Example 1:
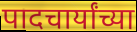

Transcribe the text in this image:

पादचार्यांच्या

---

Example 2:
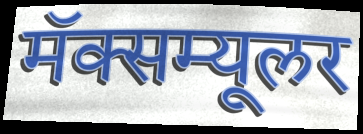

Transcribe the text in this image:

मॅक्सम्यूलर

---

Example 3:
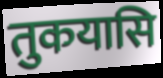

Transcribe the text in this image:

तुकयासि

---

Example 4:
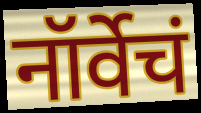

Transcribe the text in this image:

नॉर्वेचं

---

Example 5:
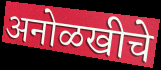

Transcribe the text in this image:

अनोळखीचे